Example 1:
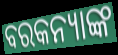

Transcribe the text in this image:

ବରକନ୍ୟାଙ୍କ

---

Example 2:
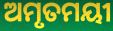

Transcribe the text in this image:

ଅମୃତମୟୀ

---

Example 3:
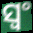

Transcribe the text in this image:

ସ୍ୱଂ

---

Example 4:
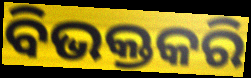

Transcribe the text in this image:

ବିଭକ୍ତକରି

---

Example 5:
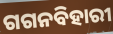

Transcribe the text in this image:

ଗଗନବିହାରୀ